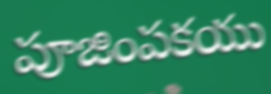
పూజింపకయు